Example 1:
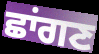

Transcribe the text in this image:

ਛਾਂਗਣ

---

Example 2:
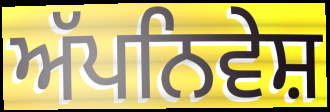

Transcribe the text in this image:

ਅੱਪਨਿਵੇਸ਼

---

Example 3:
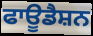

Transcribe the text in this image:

ਫਾਊਡੈਸ਼ਨ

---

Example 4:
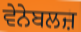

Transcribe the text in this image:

ਵੇਨੇਬਲਜ਼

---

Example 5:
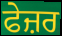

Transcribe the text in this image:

ਫੇਜ਼ਰ